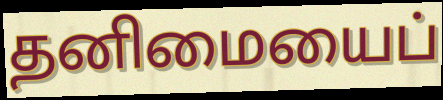
தனிமையைப்